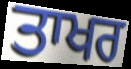
ਤਾਖਰ